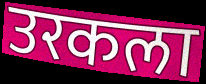
उरकला